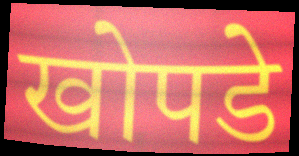
खोपडे